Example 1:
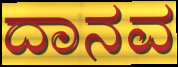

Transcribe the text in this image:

ದಾನವ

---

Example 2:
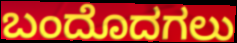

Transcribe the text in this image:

ಬಂದೊದಗಲು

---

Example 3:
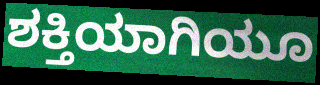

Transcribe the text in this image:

ಶಕ್ತಿಯಾಗಿಯೂ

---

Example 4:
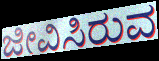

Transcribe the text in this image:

ಜೀವಿಸಿರುವ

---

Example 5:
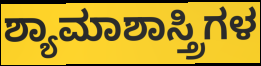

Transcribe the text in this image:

ಶ್ಯಾಮಾಶಾಸ್ತ್ರಿಗಳ